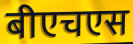
बीएचएस